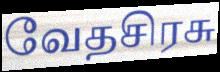
வேதசிரசு